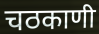
चठकाणी